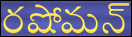
రషోమన్